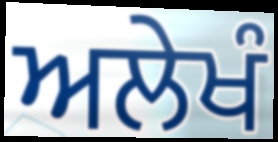
ਅਲੇਖੰ